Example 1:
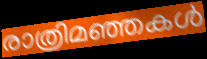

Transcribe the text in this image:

രാത്രിമഞ്ഞകൾ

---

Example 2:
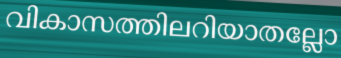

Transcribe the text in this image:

വികാസത്തിലറിയാതല്ലോ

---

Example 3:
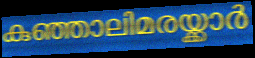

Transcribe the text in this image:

കുഞ്ഞാലിമരയ്ക്കാർ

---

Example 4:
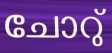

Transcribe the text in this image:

ചോറു്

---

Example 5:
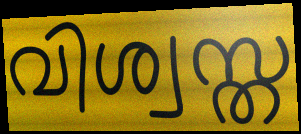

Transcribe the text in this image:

വിശ്വസ്ത